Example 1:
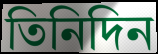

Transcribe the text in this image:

তিনিদিন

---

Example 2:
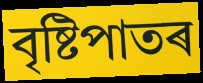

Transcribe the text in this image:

বৃষ্টিপাতৰ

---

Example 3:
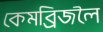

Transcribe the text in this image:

কেমব্ৰিজলৈ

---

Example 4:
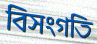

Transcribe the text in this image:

বিসংগতি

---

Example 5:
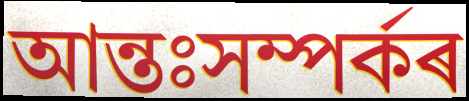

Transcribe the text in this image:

আন্তঃসম্পৰ্কৰ